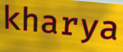
kharya